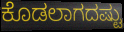
ಕೊಡಲಾಗದಷ್ಟು